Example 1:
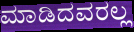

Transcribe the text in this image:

ಮಾಡಿದವರಲ್ಲ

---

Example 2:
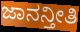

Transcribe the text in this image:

ಜಾನನ್ತೀತಿ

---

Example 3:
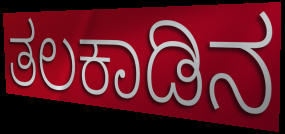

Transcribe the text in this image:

ತಲಕಾಡಿನ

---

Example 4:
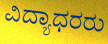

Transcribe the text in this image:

ವಿದ್ಯಾಧರರು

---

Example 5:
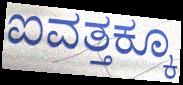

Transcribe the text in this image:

ಐವತ್ತಕ್ಕೂ